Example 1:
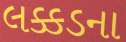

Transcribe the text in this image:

લક્કડના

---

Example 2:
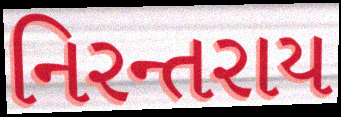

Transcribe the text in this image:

નિરન્તરાય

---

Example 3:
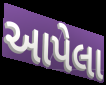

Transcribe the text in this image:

આપેલા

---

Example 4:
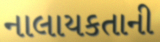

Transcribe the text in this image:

નાલાયકતાની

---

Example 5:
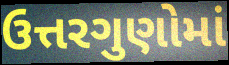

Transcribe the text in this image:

ઉત્તરગુણોમાં